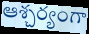
ఆశ్చర్యంగా